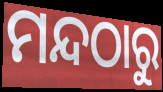
ମନ୍ଦଠାରୁ